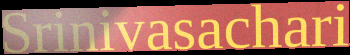
Srinivasachari